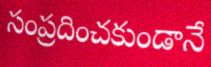
సంప్రదించకుండానే